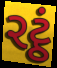
રટ્ઠં